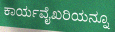
ಕಾರ್ಯವೈಖರಿಯನ್ನೂ